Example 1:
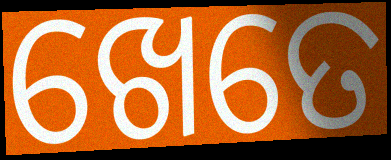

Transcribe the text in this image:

ଖେତେ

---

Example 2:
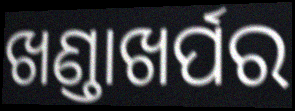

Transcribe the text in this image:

ଖଣ୍ଡାଖର୍ପର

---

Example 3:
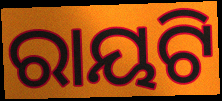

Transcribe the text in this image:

ରାୟଟି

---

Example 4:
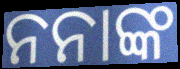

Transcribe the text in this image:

ନନାଙ୍କ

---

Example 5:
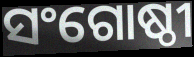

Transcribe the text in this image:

ସଂଗୋଷ୍ଠୀ